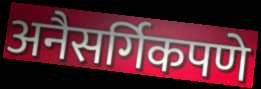
अनैसर्गिकपणे